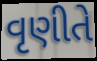
વૃણીતે